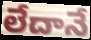
లేదానే